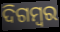
ଦିଗମ୍ବର